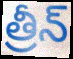
త్రీన్